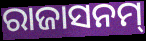
ରାଜାସନମ୍